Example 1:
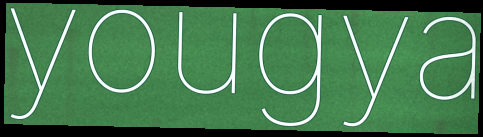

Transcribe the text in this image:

yougya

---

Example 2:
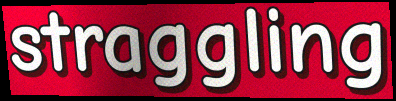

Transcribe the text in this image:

straggling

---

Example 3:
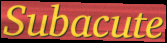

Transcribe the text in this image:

Subacute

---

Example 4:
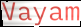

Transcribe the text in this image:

Vayam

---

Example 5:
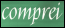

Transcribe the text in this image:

comprei